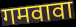
गमवावा